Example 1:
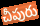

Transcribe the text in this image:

చీపురు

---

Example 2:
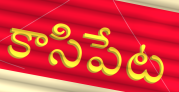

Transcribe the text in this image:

కాసిపేట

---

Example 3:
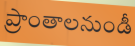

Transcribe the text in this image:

ప్రాంతాలనుండీ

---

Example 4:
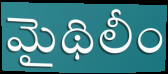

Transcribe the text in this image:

మైథిలీం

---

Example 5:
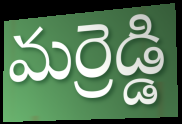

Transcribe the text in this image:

మర్రెడ్డి